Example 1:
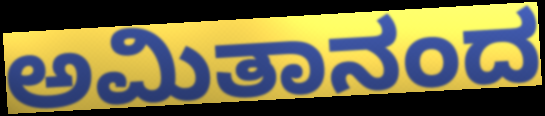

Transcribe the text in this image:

ಅಮಿತಾನಂದ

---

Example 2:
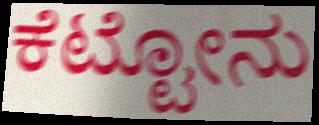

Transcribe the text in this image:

ಕೆಟ್ಟೋನು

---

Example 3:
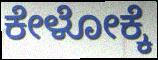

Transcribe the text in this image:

ಕೇಳೋಕ್ಕೆ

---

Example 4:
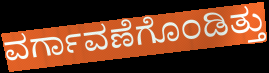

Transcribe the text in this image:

ವರ್ಗಾವಣೆಗೊಂಡಿತ್ತು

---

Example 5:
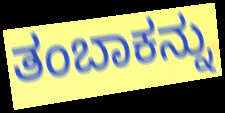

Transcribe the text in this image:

ತಂಬಾಕನ್ನು